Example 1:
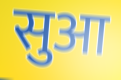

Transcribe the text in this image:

सुआ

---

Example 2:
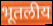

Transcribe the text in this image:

भूतलीय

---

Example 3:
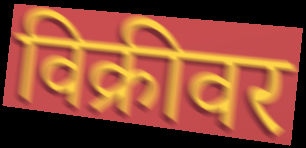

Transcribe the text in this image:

विक्रीवर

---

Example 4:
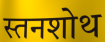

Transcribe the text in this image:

स्तनशोथ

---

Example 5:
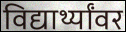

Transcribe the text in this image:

विद्यार्थ्यांवर